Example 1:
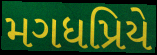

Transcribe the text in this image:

મગધપ્રિયે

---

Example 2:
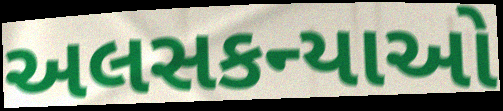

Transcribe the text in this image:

અલસકન્યાઓ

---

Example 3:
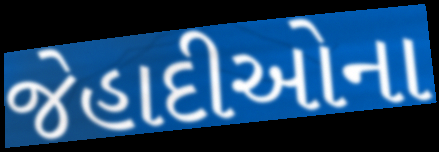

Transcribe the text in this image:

જેહાદીઓના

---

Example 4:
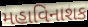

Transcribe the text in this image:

મહાવિનાશક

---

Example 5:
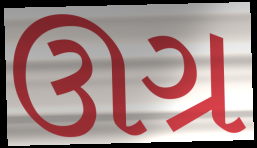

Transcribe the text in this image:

ઊગ્ર